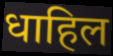
धाहिल